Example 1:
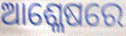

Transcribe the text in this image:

ଆଶ୍ଳେଷରେ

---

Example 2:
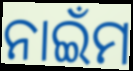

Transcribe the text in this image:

ନାଇଁମ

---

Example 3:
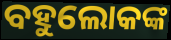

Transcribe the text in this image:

ବହୁଲୋକଙ୍କ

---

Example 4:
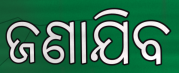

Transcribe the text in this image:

ଜଣାଯିବ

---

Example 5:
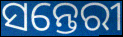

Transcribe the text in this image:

ସନ୍ତେରୀ